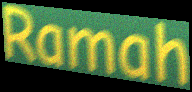
Ramah